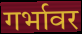
गर्भावर